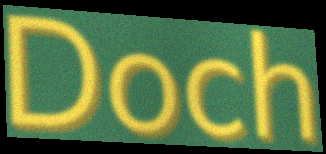
Doch